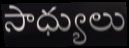
సాధ్యులు